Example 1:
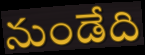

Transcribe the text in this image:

నుండేది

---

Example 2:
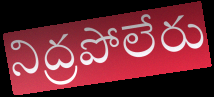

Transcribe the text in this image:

నిద్రపోలేరు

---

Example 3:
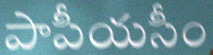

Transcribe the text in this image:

పాపీయసీం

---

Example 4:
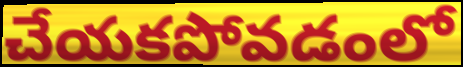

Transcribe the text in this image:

చేయకపోవడంలో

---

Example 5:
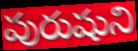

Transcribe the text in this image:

పురుషుని